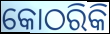
କୋଠରିକି